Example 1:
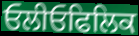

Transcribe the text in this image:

ਓਲੀਓਫਿਲਿਕ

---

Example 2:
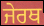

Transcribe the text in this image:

ਜੇਰਥ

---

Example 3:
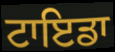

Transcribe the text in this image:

ਟਾਇਡਾ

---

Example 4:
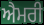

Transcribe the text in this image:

ਐਮਰੀ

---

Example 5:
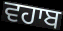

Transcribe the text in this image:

ਵਹਾਬ